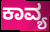
ಕಾವ್ಯ